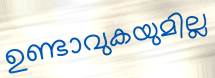
ഉണ്ടാവുകയുമില്ല